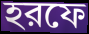
হরফে